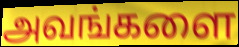
அவங்களை